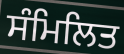
ਸੰਮਿਲਿਤ